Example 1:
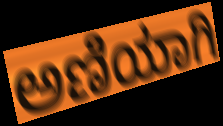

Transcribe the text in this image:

ಅಣಿಯಾಗಿ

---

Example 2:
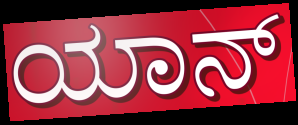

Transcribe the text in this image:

ಯಾನ್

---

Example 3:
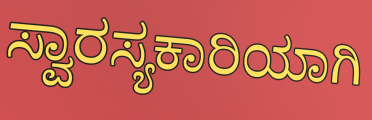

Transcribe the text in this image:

ಸ್ವಾರಸ್ಯಕಾರಿಯಾಗಿ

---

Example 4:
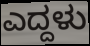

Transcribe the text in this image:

ಎದ್ದಳು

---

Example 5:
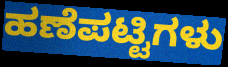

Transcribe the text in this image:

ಹಣೆಪಟ್ಟಿಗಳು